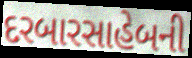
દરબારસાહેબની